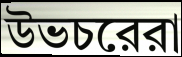
উভচরেরা